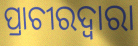
ପ୍ରାଚୀରଦ୍ୱାରା